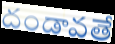
దండావతే